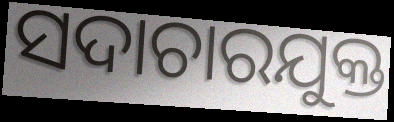
ସଦାଚାରଯୁକ୍ତ